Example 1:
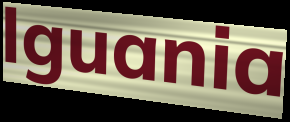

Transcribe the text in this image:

Iguania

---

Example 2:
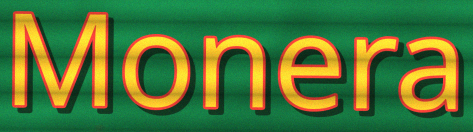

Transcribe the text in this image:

Monera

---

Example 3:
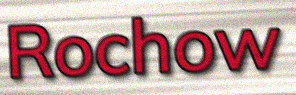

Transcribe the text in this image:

Rochow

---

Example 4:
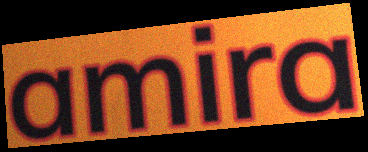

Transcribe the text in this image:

amira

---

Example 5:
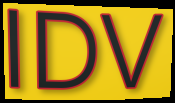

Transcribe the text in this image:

IDV